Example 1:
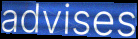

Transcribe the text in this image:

advises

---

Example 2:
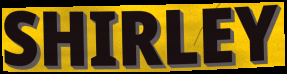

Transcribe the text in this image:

SHIRLEY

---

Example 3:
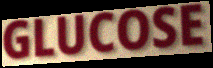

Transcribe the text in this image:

GLUCOSE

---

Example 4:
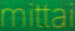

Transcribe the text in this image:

mittai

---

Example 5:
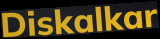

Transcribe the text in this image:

Diskalkar